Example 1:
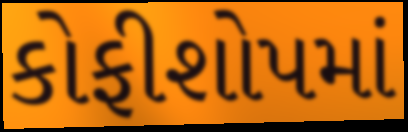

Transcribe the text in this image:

કોફીશોપમાં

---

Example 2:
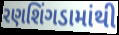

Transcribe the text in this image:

રણશિંગડામાંથી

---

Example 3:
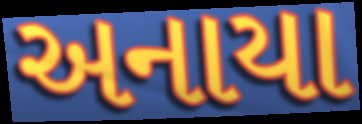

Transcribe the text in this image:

અનાયા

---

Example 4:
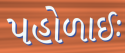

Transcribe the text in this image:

પહોળાઈઃ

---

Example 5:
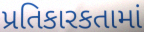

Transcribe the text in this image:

પ્રતિકારકતામાં